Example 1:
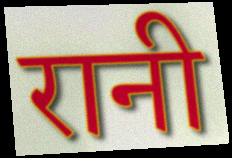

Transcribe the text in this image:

रानी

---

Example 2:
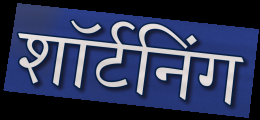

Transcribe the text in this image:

शॉर्टनिंग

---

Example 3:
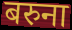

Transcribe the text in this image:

बरुना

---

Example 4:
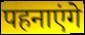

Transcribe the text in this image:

पहनाएंगे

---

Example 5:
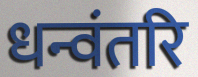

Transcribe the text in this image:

धन्वंतरि